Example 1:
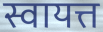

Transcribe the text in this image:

स्वायत्त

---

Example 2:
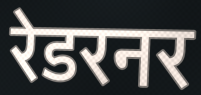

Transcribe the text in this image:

रेडरनर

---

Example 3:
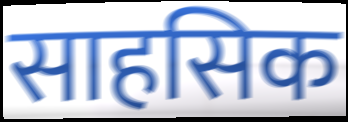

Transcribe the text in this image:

साहसिक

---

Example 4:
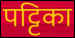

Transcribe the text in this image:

पट्टिका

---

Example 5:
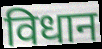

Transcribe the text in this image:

विधान